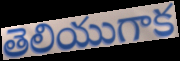
తెలియుగాక